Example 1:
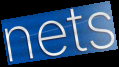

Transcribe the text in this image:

nets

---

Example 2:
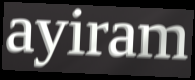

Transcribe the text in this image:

ayiram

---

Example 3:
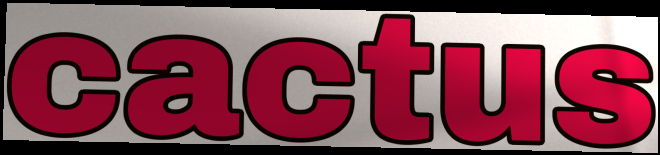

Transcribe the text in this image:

cactus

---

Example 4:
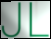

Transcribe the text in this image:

JL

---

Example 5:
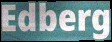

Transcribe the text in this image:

Edberg